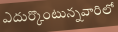
ఎదుర్కొంటున్నవారిలో